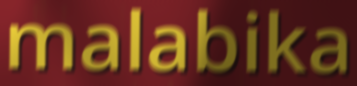
malabika